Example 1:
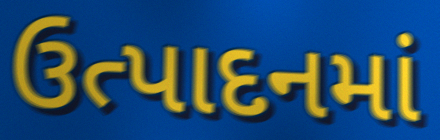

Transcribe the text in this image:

ઉત્પાદનમાં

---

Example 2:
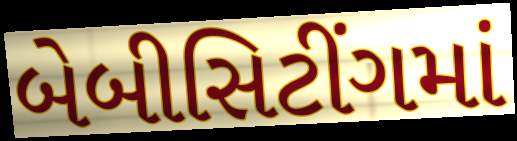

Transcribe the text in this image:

બેબીસિટીંગમાં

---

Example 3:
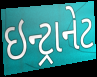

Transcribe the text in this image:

ઇન્ટ્રાનેટ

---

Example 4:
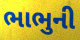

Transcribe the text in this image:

ભાભુની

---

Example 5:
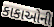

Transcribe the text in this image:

કાકાઓની